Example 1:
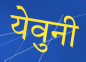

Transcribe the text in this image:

येवुनी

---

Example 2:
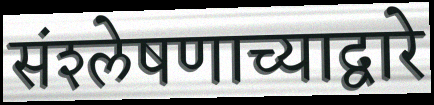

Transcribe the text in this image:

संश्लेषणाच्याद्वारे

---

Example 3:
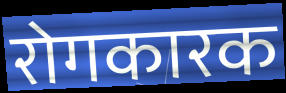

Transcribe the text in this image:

रोगकारक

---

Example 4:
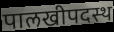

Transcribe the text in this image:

पालखीपदस्थ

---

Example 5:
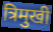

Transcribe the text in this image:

त्रिमुखी